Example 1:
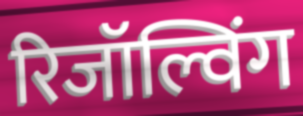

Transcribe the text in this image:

रिजॉल्विंग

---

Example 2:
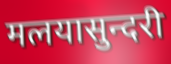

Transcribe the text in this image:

मलयासुन्दरी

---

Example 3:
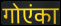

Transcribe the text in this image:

गोएंका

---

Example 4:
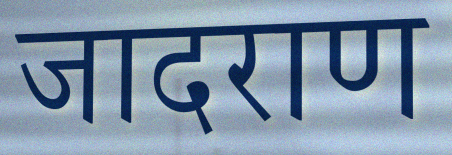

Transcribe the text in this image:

जादराण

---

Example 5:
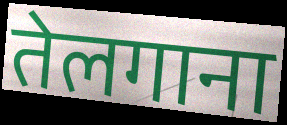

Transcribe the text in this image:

तेलगाना